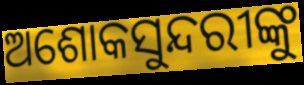
ଅଶୋକସୁନ୍ଦରୀଙ୍କୁ